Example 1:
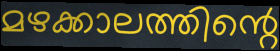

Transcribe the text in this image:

മഴക്കാലത്തിന്റെ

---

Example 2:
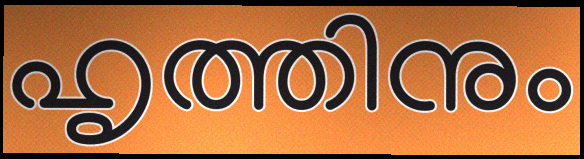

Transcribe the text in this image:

ഹൃത്തിനും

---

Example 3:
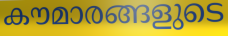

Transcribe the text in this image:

കൗമാരങ്ങളുടെ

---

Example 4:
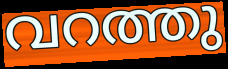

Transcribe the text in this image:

വറത്തു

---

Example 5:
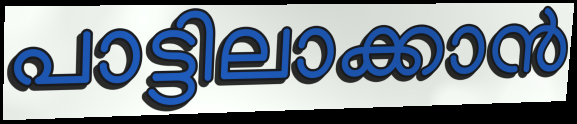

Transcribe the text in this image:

പാട്ടിലാക്കാൻ